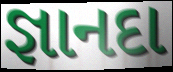
જ્ઞાનદા